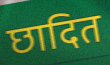
छादित